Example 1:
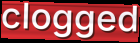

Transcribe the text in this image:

clogged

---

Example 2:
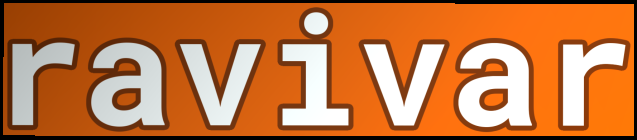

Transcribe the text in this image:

ravivar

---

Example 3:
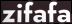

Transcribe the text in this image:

zifafa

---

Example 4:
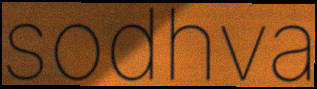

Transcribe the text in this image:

sodhva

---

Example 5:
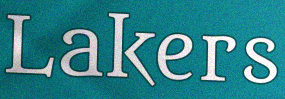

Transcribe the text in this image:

Lakers